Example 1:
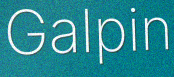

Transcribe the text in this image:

Galpin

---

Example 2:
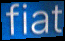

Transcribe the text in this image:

fiat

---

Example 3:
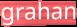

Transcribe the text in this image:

grahan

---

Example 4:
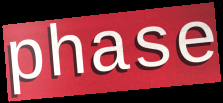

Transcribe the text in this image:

phase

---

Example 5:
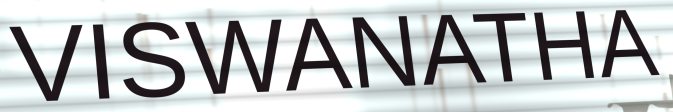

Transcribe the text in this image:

VISWANATHA